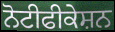
ਨੋਟੀਫੀਕੇਸ਼ਨ